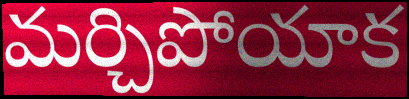
మర్చిపోయాక